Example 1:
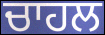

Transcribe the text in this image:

ਚਾਹਲ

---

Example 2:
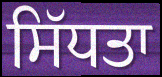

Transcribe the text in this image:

ਸਿੱਧਤਾ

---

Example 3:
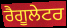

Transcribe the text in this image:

ਰੈਗੂਲੇਟਰ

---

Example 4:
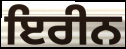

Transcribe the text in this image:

ਇਰੀਨ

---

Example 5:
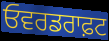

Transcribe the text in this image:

ਓਵਰਡਰਾਫ਼ਟ